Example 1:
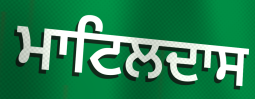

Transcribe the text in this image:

ਮਾਟਿਲਦਾਸ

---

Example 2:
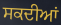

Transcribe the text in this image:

ਸਕਦੀਆਂ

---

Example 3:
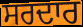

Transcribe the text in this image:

ਸਰਦਾਰ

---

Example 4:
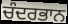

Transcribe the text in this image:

ਚੰਦਰਭਾਨ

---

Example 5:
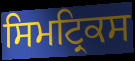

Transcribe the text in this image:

ਸਿਮਟ੍ਰਿਕਸ